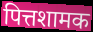
पित्तशामक